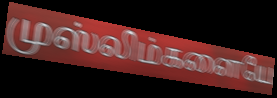
முஸ்லிம்களையே